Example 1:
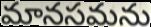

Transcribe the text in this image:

మానసమను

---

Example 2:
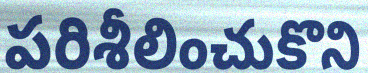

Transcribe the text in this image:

పరిశీలించుకొని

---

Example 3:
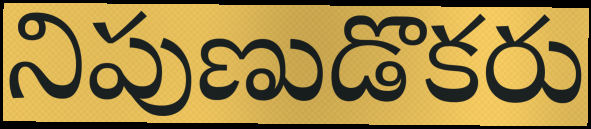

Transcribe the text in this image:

నిపుణుడొకరు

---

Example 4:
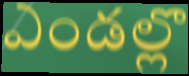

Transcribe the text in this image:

ఎండల్లొ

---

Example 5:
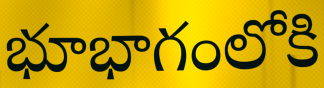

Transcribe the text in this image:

భూభాగంలోకి